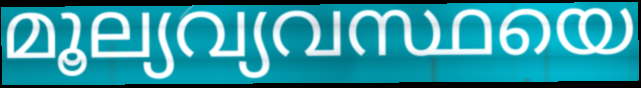
മൂല്യവ്യവസ്ഥയെ